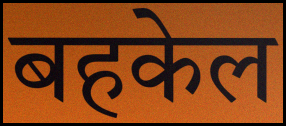
बहकेल